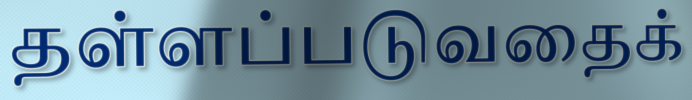
தள்ளப்படுவதைக்